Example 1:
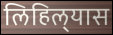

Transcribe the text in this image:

लिहिल्यास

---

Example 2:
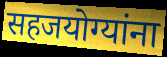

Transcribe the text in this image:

सहजयोग्यांना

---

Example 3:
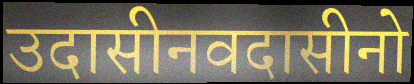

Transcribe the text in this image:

उदासीनवदासीनो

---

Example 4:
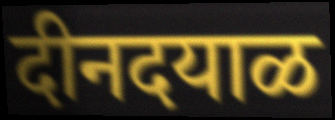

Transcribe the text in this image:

दीनदयाळ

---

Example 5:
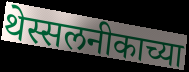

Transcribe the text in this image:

थेस्सलनीकाच्या